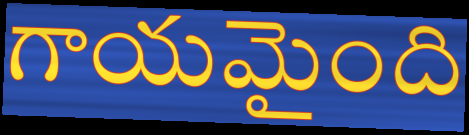
గాయమైంది